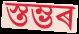
স্তম্ভৰ